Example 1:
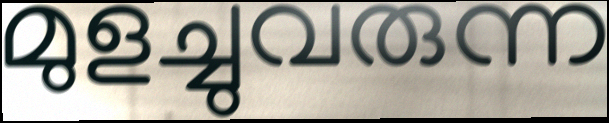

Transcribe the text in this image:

മുളച്ചുവരുന്ന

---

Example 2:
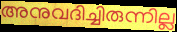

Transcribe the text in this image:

അനുവദിച്ചിരുന്നില്ല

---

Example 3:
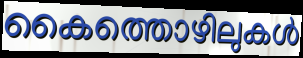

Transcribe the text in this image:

കൈത്തൊഴിലുകൾ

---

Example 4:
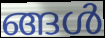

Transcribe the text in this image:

ങ്ങൾ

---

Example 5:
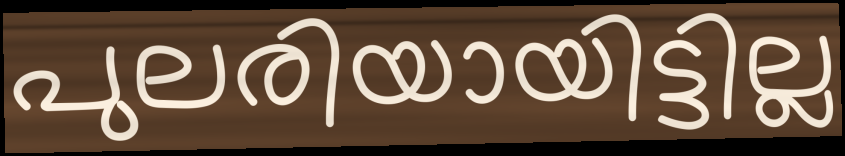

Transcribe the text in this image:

പുലരിയായിട്ടില്ല